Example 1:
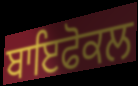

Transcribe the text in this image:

ਬਾਇਫੋਕਲ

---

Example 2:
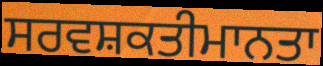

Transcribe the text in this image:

ਸਰਵਸ਼ਕਤੀਮਾਨਤਾ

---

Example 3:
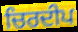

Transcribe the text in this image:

ਚਿਰਦੀਪ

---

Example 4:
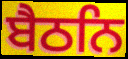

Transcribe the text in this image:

ਬੈਠਨਿ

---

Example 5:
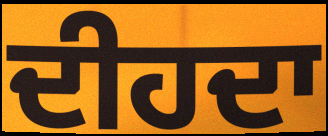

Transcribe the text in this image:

ਦੀਹਦਾ